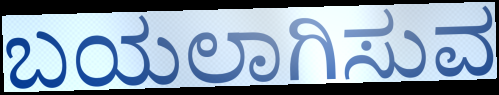
ಬಯಲಾಗಿಸುವ